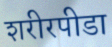
शरीरपीडा